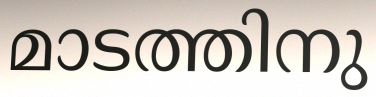
മാടത്തിനു